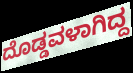
ದೊಡ್ಡವಳಾಗಿದ್ದ